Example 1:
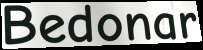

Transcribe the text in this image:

Bedonar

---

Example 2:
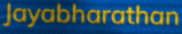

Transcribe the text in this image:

Jayabharathan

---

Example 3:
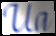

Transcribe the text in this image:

Ua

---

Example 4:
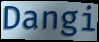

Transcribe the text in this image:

Dangi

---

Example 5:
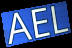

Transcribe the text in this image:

AEL